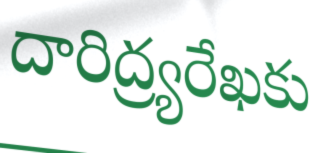
దారిద్ర్యరేఖకు